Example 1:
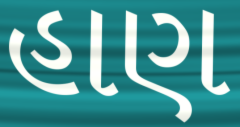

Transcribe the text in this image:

હાણ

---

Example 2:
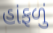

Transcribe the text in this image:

હાંફળું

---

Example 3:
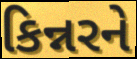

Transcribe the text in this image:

કિન્નરને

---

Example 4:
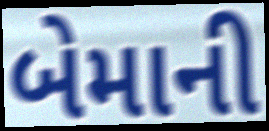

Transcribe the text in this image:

બેમાની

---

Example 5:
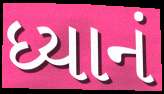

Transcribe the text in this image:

ધ્યાનં